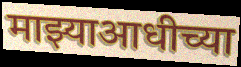
माझ्याआधीच्या